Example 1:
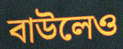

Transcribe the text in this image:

বাউলেও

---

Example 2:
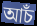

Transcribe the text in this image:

আচঁ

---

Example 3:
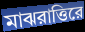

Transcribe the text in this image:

মাঝরাত্তিরে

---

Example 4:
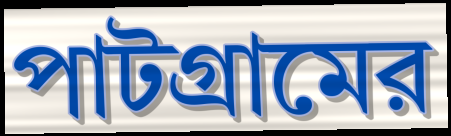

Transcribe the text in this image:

পাটগ্রামের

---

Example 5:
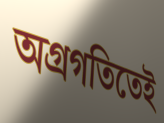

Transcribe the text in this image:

অগ্রগতিতেই